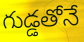
గుడ్డతోనే